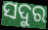
ସଦୁର